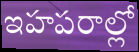
ఇహపరాల్లో